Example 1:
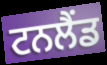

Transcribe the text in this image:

ਟਨਲੈਂਡ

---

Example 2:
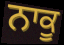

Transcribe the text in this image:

ਨਾਕੂ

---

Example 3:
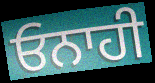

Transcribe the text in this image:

ਓਨਾਹੀ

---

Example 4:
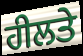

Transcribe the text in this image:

ਹੀਲਤੇ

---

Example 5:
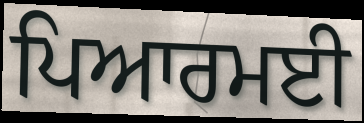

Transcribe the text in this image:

ਪਿਆਰਮਈ